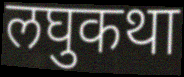
लघुकथा